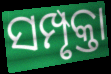
ସମ୍ପୃକ୍ତା